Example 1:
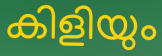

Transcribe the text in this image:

കിളിയും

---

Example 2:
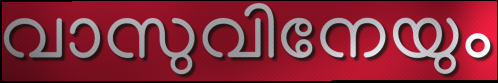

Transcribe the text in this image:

വാസുവിനേയും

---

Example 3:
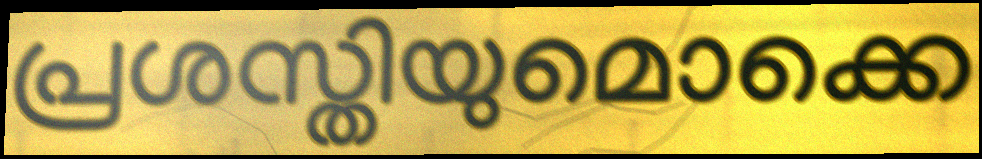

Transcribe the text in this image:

പ്രശസ്തിയുമൊക്കെ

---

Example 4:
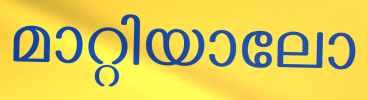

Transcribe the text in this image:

മാറ്റിയാലോ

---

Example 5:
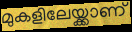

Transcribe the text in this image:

മുകളിലേയ്ക്കാണ്